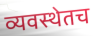
व्यवस्थेतच